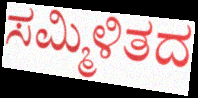
ಸಮ್ಮಿಳಿತದ